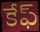
కేఫ్